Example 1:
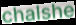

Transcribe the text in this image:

chalshe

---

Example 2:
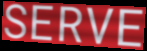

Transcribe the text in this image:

SERVE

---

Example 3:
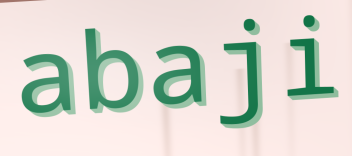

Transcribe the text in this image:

abaji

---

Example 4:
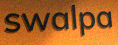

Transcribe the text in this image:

swalpa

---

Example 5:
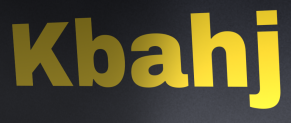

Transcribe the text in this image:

Kbahj